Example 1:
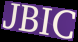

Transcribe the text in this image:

JBIC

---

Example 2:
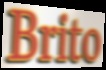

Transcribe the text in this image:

Brito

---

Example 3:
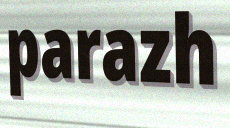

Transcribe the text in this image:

parazh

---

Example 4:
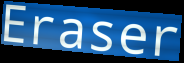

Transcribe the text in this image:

Eraser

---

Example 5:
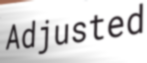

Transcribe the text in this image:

Adjusted